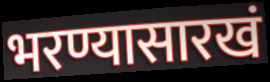
भरण्यासारखं